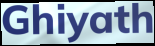
Ghiyath